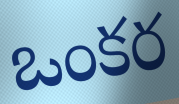
ఒంకర